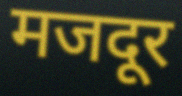
मजदूर